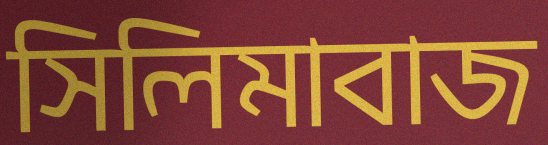
সিলিমাবাজ